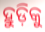
ହୁଡ଼ିକୁ